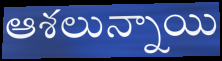
ఆశలున్నాయి